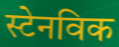
स्टेनविक